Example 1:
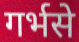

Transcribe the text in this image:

गर्भसे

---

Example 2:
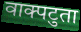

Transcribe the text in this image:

वाक्पटुता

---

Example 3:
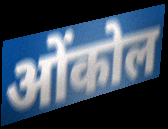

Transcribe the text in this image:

ओंकोल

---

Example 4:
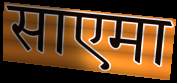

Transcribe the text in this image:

साएमा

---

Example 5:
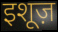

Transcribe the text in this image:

इशूज़